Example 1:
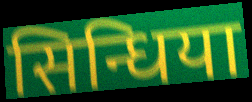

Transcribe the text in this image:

सिन्धिया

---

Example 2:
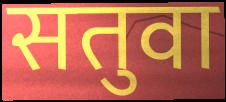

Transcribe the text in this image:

सतुवा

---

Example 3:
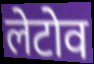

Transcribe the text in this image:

लेटोव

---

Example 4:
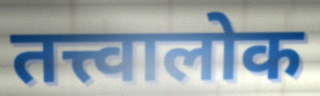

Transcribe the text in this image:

तत्त्वालोक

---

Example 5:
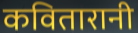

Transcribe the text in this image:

कवितारानी